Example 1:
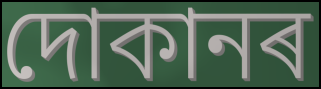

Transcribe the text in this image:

দোকানৰ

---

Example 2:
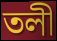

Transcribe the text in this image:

তলী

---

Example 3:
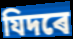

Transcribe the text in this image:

যিদৰে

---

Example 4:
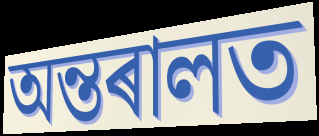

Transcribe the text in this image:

অন্তৰালত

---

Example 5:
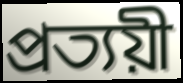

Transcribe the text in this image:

প্ৰত্যয়ী